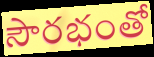
సౌరభంతో